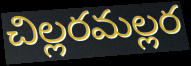
చిల్లరమల్లర